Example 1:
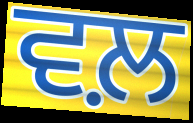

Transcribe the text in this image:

ਵਲ਼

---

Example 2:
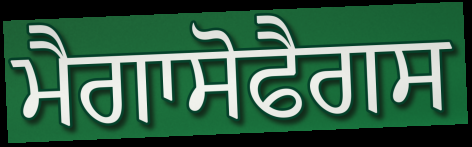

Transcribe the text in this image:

ਮੈਗਾਸੋਫੈਗਸ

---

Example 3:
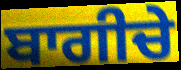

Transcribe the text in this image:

ਬਾਗੀਚੇ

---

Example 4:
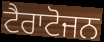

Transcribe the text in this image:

ਟੈਰਾਟੋਜਨ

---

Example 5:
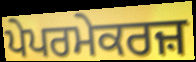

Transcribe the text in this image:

ਪੇਪਰਮੇਕਰਜ਼